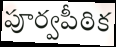
పూర్వపీఠిక